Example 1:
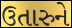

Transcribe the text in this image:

ઉતારુને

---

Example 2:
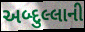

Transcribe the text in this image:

અબ્દુલ્લાની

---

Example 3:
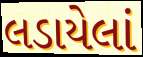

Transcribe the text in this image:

લડાયેલાં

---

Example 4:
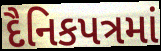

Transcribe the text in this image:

દૈનિકપત્રમાં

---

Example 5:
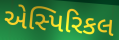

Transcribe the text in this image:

એસ્પિરિકલ